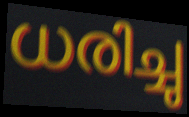
ധരിച്ചു